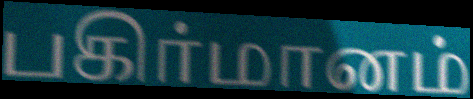
பகிர்மானம்